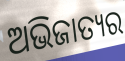
ଅଭିଜାତ୍ୟର